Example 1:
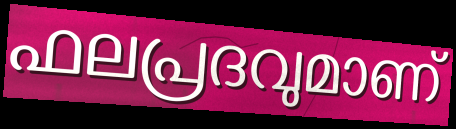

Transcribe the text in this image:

ഫലപ്രദവുമാണ്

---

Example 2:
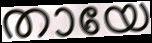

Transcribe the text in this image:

തായേ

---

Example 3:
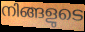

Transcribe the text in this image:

നിങ്ങളുടെ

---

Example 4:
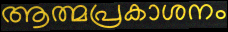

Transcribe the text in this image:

ആത്മപ്രകാശനം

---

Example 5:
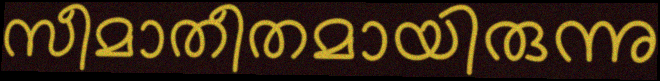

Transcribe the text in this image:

സീമാതീതമായിരുന്നു